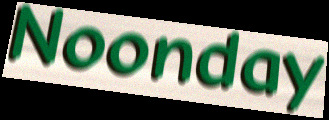
Noonday